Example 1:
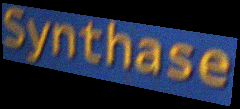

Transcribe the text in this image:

Synthase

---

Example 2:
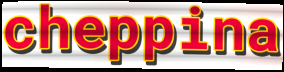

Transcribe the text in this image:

cheppina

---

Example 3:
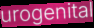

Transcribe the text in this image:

urogenital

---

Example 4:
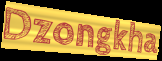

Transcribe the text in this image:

Dzongkha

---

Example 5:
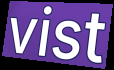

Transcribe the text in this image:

vist